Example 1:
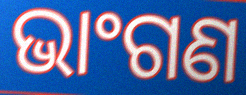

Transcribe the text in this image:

ଭାଂଗଣ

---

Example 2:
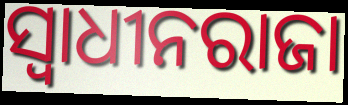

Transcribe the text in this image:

ସ୍ୱାଧୀନରାଜା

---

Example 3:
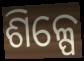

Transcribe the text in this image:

ଶିଳ୍ପେ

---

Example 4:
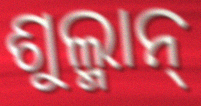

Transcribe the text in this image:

ଶୁଲ୍ମାନ୍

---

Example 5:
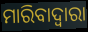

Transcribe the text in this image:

ମାରିବାଦ୍ୱାରା